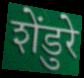
शेंडुरे